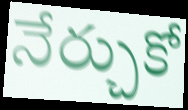
నేర్చుకో